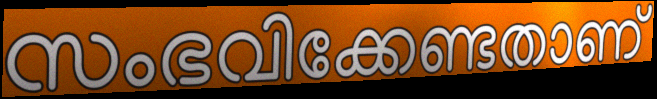
സംഭവിക്കേണ്ടതാണ്